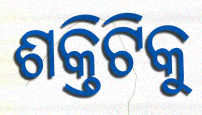
ଶକ୍ତିଟିକୁ